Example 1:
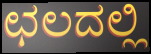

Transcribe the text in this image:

ಛಲದಲ್ಲಿ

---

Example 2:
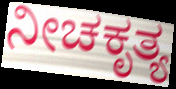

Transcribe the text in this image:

ನೀಚಕೃತ್ಯ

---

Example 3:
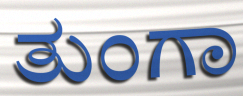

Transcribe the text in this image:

ತುಂಗಾ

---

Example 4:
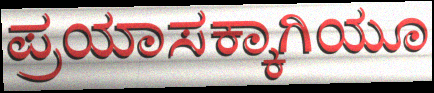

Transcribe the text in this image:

ಪ್ರಯಾಸಕ್ಕಾಗಿಯೂ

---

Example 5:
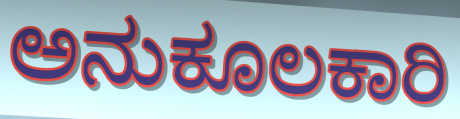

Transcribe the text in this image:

ಅನುಕೂಲಕಾರಿ